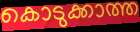
കൊടുക്കാത്ത